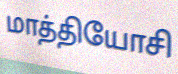
மாத்தியோசி